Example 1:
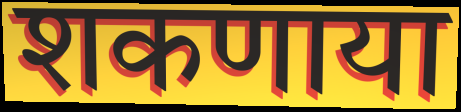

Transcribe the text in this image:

शकणाया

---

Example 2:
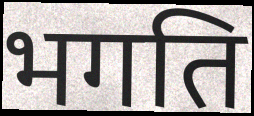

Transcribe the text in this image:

भगति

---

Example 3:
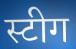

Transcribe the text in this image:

स्टीग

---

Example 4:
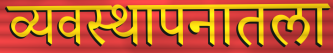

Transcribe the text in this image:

व्यवस्थापनातला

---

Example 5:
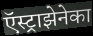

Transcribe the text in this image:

ऍस्ट्राझेनेका